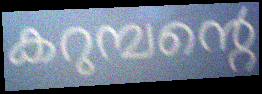
കറുമ്പന്റെ